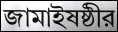
জামাইষষ্ঠীর